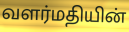
வளர்மதியின்